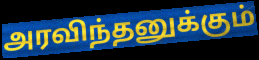
அரவிந்தனுக்கும்